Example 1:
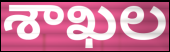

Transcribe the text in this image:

శాఖల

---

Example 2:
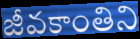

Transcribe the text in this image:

జీవకాంతిని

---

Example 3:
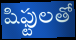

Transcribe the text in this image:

షిఫ్టులతో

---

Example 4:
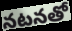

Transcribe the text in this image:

నటనతో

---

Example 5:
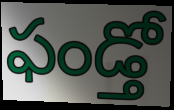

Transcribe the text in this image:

ఫండ్తో